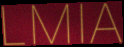
LMIA